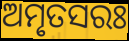
ଅମୃତସରଃ